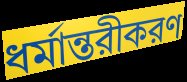
ধর্মান্তরীকরণ